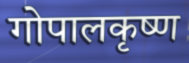
गोपालकृष्‍ण